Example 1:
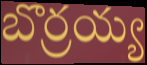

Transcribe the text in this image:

బొర్రయ్య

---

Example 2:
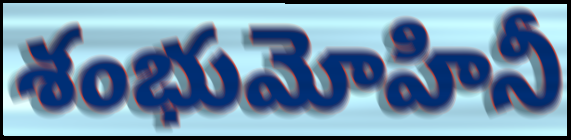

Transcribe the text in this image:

శంభుమోహినీ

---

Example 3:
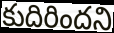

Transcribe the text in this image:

కుదిరిందని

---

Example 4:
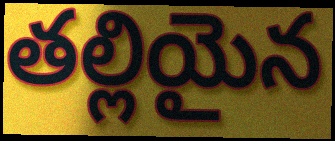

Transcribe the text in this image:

తల్లియైన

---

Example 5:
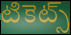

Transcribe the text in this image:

టికెట్స్